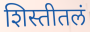
शिस्तीतलं